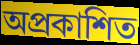
অপ্ৰকাশিত